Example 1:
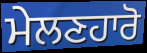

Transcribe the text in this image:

ਮੇਲਣਹਾਰੋ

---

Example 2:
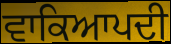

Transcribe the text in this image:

ਵਾਕਿਆਪਦੀ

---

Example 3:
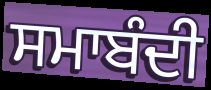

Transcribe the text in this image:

ਸਮਾਬੰਦੀ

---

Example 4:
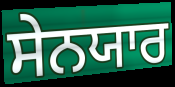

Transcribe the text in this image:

ਸੇਨਯਾਰ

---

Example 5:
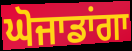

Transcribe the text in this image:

ਘੋਜਾਡਾਂਗਾ